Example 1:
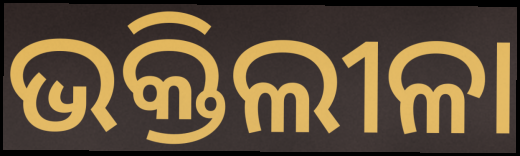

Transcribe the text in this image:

ଭକ୍ତିଲୀଳା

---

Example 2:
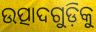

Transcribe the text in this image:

ଉତ୍ପାଦଗୁଡ଼ିକୁ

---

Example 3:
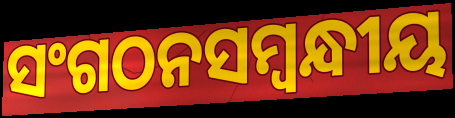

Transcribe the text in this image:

ସଂଗଠନସମ୍ବନ୍ଧୀୟ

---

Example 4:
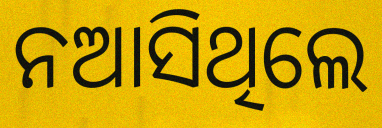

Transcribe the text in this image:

ନଆସିଥିଲେ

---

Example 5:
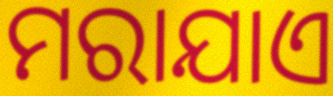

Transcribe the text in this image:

ମରାଯାଏ